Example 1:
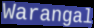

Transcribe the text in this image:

Warangal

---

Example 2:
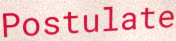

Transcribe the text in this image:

Postulate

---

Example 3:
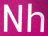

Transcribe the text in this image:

Nh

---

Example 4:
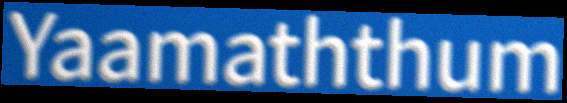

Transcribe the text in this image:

Yaamaththum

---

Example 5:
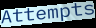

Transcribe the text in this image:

Attempts